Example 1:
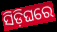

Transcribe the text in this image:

ସିଡ଼ିଘରେ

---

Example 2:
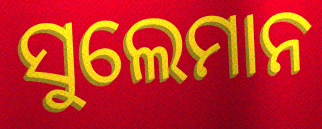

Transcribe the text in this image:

ସୁଲେମାନ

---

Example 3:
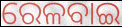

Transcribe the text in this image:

ରେଳବାଇ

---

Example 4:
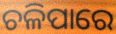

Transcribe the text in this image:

ଚଳିପାରେ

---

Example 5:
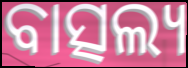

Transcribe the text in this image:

ବାତ୍ସଲ୍ଯ